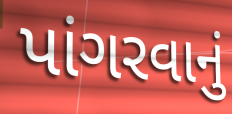
પાંગરવાનું